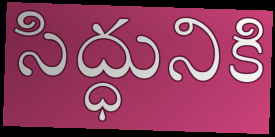
సిద్ధునికి